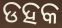
ଡହକ